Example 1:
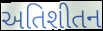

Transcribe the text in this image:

અતિશીતન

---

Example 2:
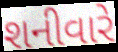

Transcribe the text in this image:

શનીવારે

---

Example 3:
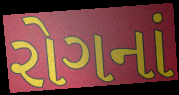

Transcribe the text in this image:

રોગનાં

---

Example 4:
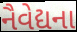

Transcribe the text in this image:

નૈવેદ્યના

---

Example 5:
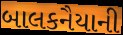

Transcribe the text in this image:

બાલકનૈયાની